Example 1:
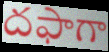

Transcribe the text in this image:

దఫాగా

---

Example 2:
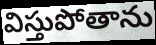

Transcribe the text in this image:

విస్తుపోతాను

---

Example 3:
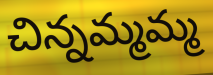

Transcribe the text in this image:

చిన్నమ్మమ్మ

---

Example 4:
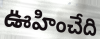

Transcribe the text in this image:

ఊహించేది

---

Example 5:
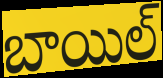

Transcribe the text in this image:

బాయిల్